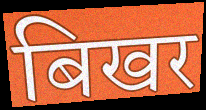
बिखर